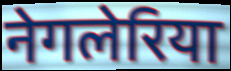
नेगलेरिया